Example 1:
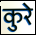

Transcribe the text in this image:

कुरे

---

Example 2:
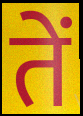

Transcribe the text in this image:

तें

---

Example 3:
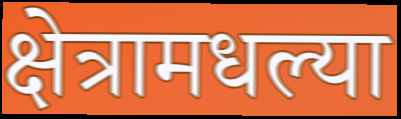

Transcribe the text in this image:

क्षेत्रामधल्या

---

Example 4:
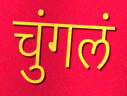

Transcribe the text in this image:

चुंगलं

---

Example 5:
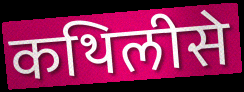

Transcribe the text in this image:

कथिलीसे